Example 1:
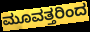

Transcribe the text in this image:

ಮೂವತ್ತರಿಂದ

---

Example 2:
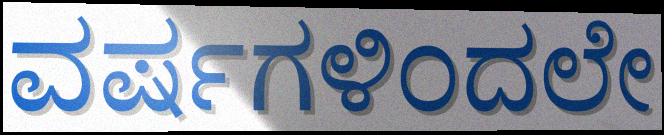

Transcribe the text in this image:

ವರ್ಷಗಳಿಂದಲೇ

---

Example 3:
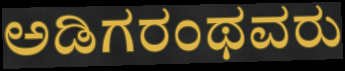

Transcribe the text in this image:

ಅಡಿಗರಂಥವರು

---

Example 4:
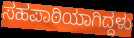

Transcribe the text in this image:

ಸಹಪಾಠಿಯಾಗಿದ್ದಳು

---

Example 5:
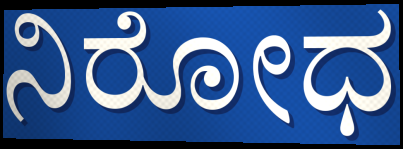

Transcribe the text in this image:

ನಿರೋಧ